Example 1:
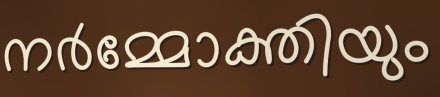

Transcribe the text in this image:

നർമ്മോക്തിയും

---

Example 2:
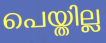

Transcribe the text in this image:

പെയ്തില്ല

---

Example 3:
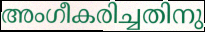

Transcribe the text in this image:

അംഗീകരിച്ചതിനു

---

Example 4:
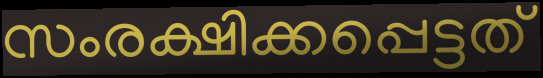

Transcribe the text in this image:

സംരക്ഷിക്കപ്പെട്ടത്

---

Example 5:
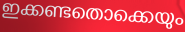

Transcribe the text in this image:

ഇക്കണ്ടതൊക്കെയും